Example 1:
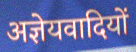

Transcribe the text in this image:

अज्ञेयवादियों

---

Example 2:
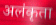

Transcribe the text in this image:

अलंकृता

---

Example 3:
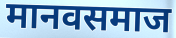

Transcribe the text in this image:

मानवसमाज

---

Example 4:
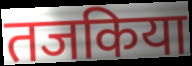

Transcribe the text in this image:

तजकिया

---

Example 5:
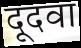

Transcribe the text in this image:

दूदवा